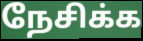
நேசிக்க